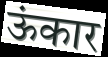
ऊंकार